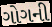
ગોગની